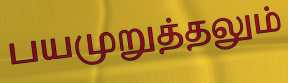
பயமுறுத்தலும்